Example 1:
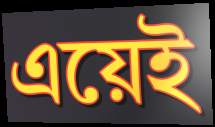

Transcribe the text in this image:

এয়েই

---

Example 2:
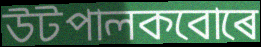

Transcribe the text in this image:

উটপালকবোৰে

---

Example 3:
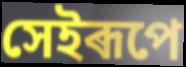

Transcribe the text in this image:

সেইৰূপে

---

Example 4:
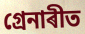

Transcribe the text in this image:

গ্ৰেনাৰীত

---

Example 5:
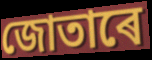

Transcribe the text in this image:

জোতাৰে